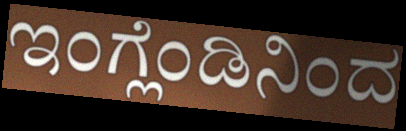
ಇಂಗ್ಲೆಂಡಿನಿಂದ